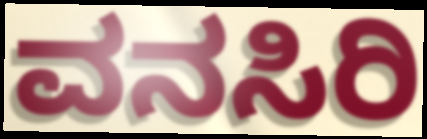
ವನಸಿರಿ